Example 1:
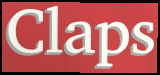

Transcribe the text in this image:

Claps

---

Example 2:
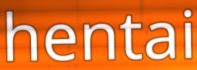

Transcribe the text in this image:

hentai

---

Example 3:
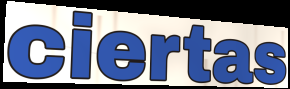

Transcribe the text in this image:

ciertas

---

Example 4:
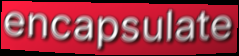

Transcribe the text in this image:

encapsulate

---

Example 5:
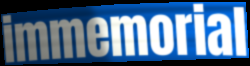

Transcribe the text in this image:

immemorial